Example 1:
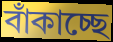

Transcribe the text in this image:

বাঁকাচ্ছে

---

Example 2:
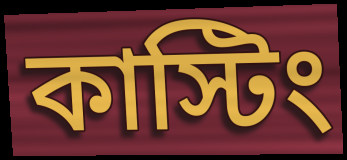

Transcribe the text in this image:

কাস্টিং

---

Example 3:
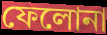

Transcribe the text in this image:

ফেলোনা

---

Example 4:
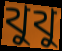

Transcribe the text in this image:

থুথু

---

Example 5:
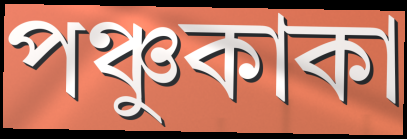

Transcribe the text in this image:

পঞ্চুকাকা